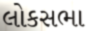
લોકસભા